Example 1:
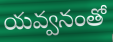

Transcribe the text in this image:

యవ్వనంతో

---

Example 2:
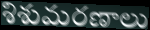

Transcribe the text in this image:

శిశుమరణాలు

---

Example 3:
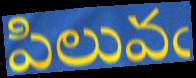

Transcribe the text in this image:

పిలువఁ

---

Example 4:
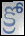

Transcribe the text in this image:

క్రో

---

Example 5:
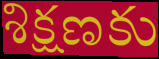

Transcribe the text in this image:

శిక్షణకు